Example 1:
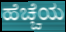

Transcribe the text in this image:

ಹೆಚ್ಚೆಯ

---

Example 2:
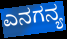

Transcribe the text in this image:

ಎನಗನ್ಯ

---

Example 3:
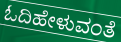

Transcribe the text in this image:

ಓದಿಹೇಳುವಂತೆ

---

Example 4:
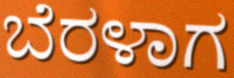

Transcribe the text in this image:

ಬೆರಳಾಗ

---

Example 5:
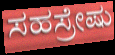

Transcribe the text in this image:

ಸಹಸ್ರೇಷು